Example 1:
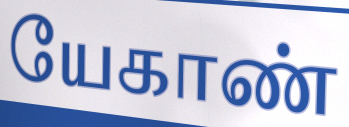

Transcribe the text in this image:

யேகாண்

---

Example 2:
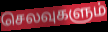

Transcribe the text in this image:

செலவுகளும்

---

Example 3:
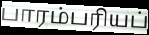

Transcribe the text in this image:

பாரம்பரியப்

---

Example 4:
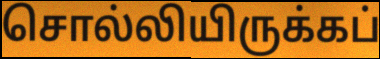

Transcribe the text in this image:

சொல்லியிருக்கப்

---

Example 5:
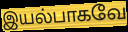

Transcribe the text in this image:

இயல்பாகவே